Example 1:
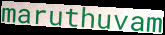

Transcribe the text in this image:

maruthuvam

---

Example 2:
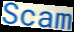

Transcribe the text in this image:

Scam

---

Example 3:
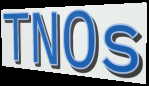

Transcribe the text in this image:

TNOs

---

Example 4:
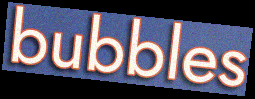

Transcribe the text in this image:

bubbles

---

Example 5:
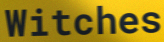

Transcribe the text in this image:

Witches